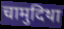
चामुदिथा